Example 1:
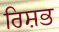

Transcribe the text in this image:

ਰਿਸ਼ਭ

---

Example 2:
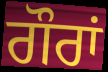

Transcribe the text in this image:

ਗੌਰਾਂ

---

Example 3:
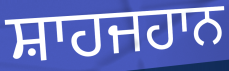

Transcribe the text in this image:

ਸ਼ਾਹਜਹਾਨ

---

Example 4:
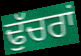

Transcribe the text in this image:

ਢੁੱਚਰਾਂ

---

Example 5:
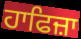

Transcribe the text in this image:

ਹਾਫਿਜ਼ਾ